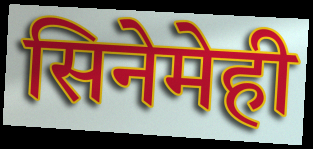
सिनेमेही